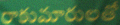
రాకుమారులతో